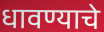
धावण्याचे